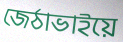
জেঠাভাইয়ে